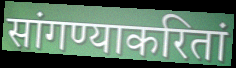
सांगण्याकरितां